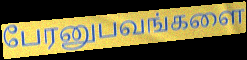
பேரனுபவங்களை